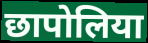
छापोलिया